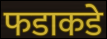
फडाकडे